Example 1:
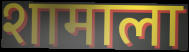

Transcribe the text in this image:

शामाला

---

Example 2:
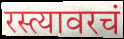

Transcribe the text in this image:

रस्त्यावरचं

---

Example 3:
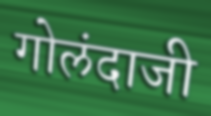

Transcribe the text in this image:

गोलंदाजी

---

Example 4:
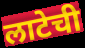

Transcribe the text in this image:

लाटेची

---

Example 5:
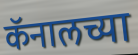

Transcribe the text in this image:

कॅनालच्या